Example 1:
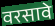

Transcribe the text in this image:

वरसावे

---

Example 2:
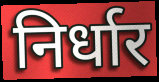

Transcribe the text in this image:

निर्धार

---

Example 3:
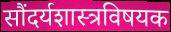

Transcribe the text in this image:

सौंदर्यशास्त्रविषयक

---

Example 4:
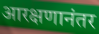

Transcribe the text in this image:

आरक्षणानंतर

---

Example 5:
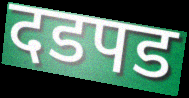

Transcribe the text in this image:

दडपड